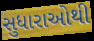
સુધારાઓથી